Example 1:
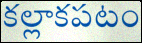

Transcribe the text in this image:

కల్లాకపటం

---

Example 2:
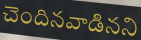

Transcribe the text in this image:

చెందినవాడినని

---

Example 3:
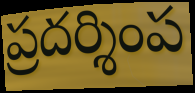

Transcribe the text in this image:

ప్రదర్శింప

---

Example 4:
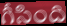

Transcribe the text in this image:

గీసింది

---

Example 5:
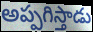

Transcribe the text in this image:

అప్పగిస్తాడు